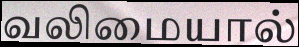
வலிமையால்